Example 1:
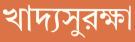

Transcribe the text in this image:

খাদ্যসুরক্ষা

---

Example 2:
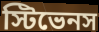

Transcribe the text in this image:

স্টিভেনস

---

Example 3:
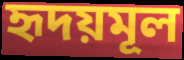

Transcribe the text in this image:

হৃদয়মূল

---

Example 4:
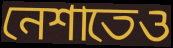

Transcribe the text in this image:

নেশাতেও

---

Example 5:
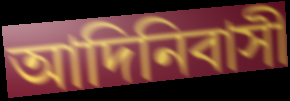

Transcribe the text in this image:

আদিনিবাসী